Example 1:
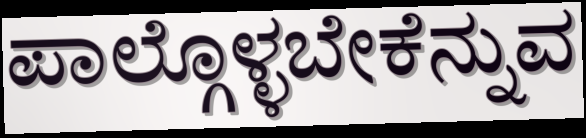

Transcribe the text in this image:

ಪಾಲ್ಗೊಳ್ಳಬೇಕೆನ್ನುವ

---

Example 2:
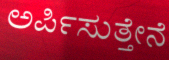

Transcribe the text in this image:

ಅರ್ಪಿಸುತ್ತೇನೆ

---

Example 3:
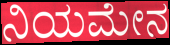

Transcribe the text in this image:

ನಿಯಮೇನ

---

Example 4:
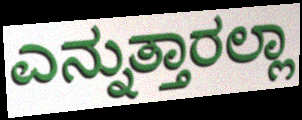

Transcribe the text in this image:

ಎನ್ನುತ್ತಾರಲ್ಲಾ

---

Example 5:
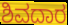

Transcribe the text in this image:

ಶಿವದಾರ